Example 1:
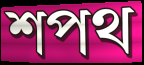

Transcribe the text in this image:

শপথ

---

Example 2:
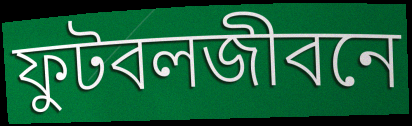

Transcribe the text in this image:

ফুটবলজীবনে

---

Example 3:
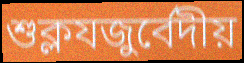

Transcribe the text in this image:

শুক্লযজুর্বেদীয়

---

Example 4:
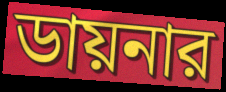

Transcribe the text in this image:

ডায়নার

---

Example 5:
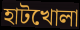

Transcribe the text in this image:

হাটখোলা